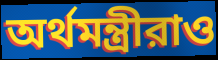
অর্থমন্ত্রীরাও